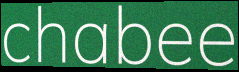
chabee